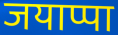
जयाप्पा